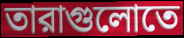
তারাগুলোতে